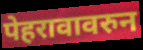
पेहरावावरुन